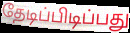
தேடிப்பிடிப்பது